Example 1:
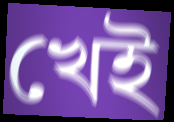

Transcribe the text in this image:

খেই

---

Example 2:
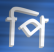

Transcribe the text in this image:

পি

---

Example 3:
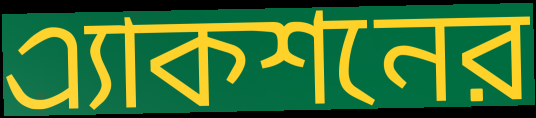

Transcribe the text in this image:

এ্যাকশনের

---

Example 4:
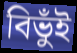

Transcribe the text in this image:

বিভুঁই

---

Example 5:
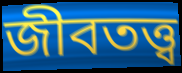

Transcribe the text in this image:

জীবতত্ত্ব